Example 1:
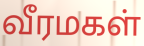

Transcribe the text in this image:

வீரமகள்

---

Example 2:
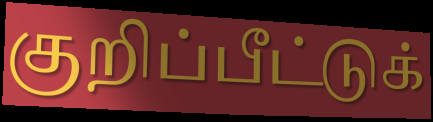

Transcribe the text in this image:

குறிப்பீட்டுக்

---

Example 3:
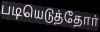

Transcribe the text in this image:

படியெடுத்தோர்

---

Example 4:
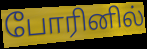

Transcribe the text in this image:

போரினில்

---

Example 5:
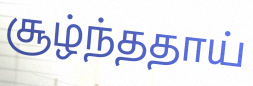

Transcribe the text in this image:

சூழ்ந்ததாய்